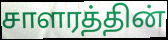
சாளரத்தின்